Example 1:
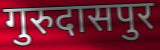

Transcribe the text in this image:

गुरुदासपुर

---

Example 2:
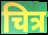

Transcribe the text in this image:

चित्र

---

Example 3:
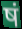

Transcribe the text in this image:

षं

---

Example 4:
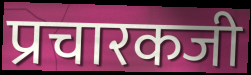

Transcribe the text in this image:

प्रचारकजी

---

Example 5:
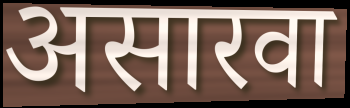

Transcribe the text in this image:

असारवा